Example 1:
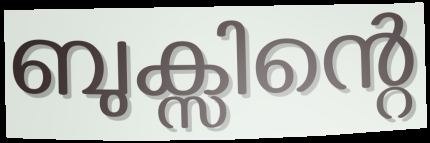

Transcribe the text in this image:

ബുക്സിന്റെ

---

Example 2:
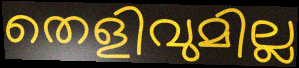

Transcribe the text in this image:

തെളിവുമില്ല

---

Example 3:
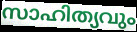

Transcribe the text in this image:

സാഹിത്യവും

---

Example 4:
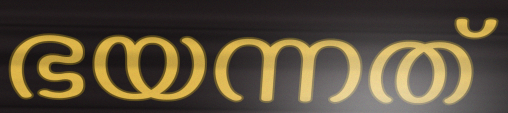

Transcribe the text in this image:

ഭയന്നത്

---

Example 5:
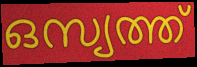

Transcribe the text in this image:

ഒസ്യത്ത്